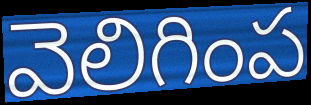
వెలిగింప